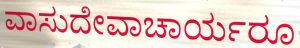
ವಾಸುದೇವಾಚಾರ್ಯರೂ